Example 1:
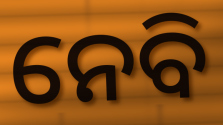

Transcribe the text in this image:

ନେବି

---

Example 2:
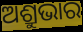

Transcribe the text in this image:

ଅଶ୍ରୁଭାର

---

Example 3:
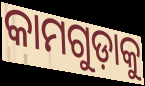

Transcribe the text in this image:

କାମଗୁଡ଼ାକୁ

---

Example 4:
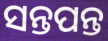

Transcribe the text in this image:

ସନ୍ତପନ୍ତ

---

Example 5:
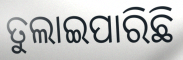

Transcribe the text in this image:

ତୁଲାଇପାରିଛି